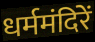
धर्ममंदिरें